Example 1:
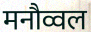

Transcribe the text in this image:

मनौव्वल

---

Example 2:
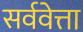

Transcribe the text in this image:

सर्ववेत्ता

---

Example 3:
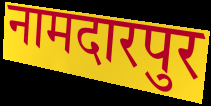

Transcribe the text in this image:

नामदारपुर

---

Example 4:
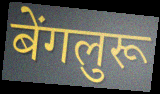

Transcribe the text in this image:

बेंगलुरू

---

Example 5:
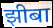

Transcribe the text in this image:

झीबा